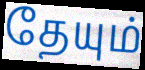
தேயும்